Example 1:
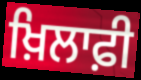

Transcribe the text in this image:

ਖ਼ਿਲਾਫ਼ੀ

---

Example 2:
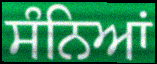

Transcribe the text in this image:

ਸੰਨਿਆਂ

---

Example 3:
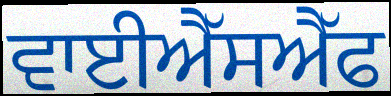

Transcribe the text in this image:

ਵਾਈਐੱਸਐੱਫ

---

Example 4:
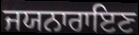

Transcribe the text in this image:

ਜਯਨਾਰਾਇਣ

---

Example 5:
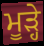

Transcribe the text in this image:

ਮੂੜ੍ਹੇ